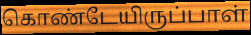
கொண்டேயிருப்பாள்